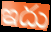
ఇదు